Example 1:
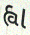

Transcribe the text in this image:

હ્વા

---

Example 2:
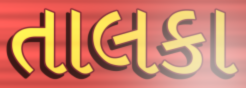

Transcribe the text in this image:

તાલકા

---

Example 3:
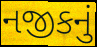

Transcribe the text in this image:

નજીકનું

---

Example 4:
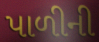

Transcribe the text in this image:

પાળીની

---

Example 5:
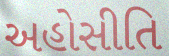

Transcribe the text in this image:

અહોસીતિ